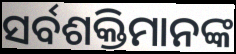
ସର୍ବଶକ୍ତିମାନଙ୍କ